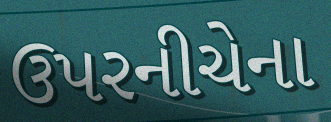
ઉપરનીચેના